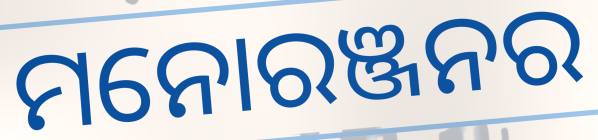
ମନୋରଞ୍ଜନର